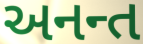
અનન્ત